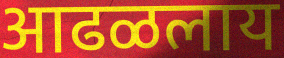
आढळलाय